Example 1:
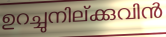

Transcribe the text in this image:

ഉറച്ചുനില്ക്കുവിൻ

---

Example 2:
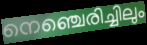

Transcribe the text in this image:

നെഞ്ചെരിച്ചിലും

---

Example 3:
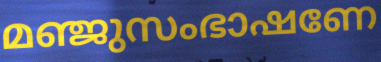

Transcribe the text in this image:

മഞ്ജുസംഭാഷണേ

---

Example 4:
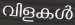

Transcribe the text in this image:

വിളകൾ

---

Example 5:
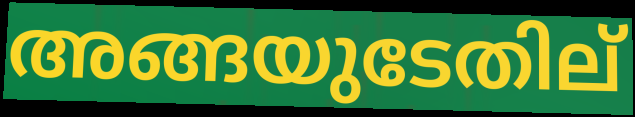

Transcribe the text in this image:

അങ്ങയുടേതില്